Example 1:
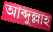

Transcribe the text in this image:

আব্দুল্লাহ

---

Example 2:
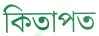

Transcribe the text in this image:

কিতাপত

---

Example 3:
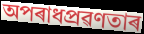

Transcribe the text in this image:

অপৰাধপ্ৰৱণতাৰ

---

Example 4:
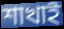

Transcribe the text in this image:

শাখাই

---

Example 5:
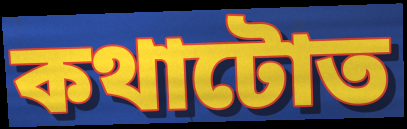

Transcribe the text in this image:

কথাটোত